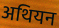
अथियन